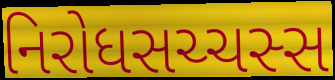
નિરોધસચ્ચસ્સ